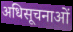
अधिसूचनाओं